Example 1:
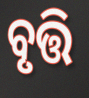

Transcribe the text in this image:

ବୃତ୍ତି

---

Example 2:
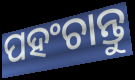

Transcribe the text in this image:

ପହଂଚାନ୍ତୁ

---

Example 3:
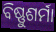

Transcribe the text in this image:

ବିଷ୍ଣୁଶର୍ମା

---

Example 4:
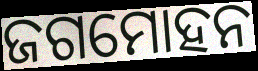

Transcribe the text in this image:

ଜଗମୋହନ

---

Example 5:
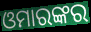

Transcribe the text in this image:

ଓମାରଙ୍କର